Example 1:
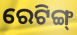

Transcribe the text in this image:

ରେଟିଙ୍ଗ୍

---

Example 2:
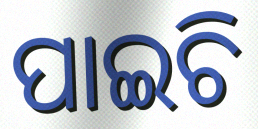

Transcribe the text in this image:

ପାଇଚି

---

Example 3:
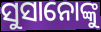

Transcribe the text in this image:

ସୁସାନୋଙ୍କୁ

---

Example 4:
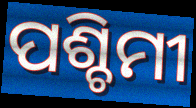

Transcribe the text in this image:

ପଶ୍ଚିମୀ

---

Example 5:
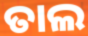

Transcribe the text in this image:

ତାଲ